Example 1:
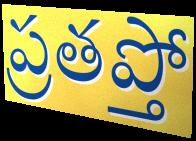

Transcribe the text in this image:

ప్రతప్తో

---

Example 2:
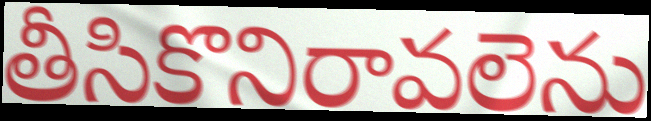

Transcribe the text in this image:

తీసికొనిరావలెను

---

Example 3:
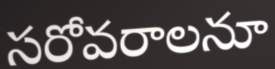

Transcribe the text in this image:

సరోవరాలనూ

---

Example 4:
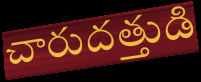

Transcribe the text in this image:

చారుదత్తుడి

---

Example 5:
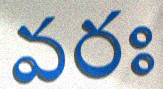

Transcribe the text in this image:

వరః